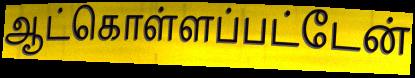
ஆட்கொள்ளப்பட்டேன்